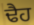
ਢੈਹ